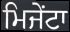
ਮਿਜੇਂਟਾ